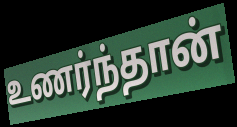
உணர்ந்தான்